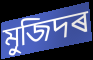
মুজিদৰ